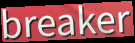
breaker